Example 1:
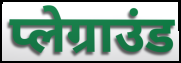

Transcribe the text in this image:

प्लेग्राउंड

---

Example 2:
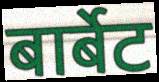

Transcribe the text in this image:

बार्बेट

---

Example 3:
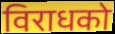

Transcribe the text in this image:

विराधको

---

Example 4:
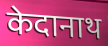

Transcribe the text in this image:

केदानाथ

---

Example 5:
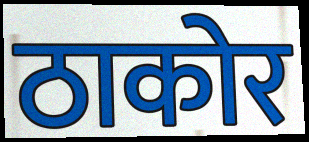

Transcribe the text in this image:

ठाकोर